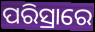
ପରିସ୍ରାରେ